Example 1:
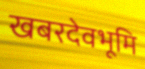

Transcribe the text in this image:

खबरदेवभूमि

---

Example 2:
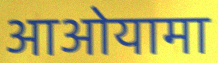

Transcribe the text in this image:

आओयामा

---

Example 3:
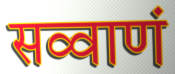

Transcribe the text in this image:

सव्वाणं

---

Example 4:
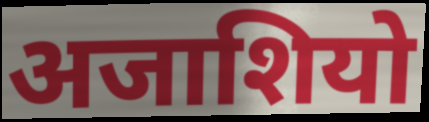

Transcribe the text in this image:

अजाशियो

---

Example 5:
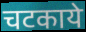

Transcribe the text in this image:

चटकाये